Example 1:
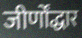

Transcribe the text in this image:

जीर्णोंद्धार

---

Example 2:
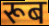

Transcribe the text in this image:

रूब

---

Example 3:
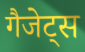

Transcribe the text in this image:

गैजेट्स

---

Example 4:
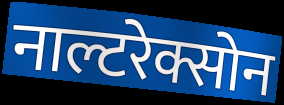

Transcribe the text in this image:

नाल्टरेक्सोन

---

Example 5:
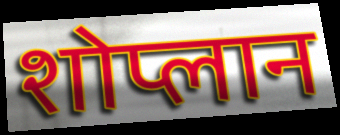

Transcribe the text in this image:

शोप्लान